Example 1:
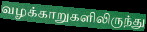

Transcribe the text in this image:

வழக்காறுகளிலிருந்து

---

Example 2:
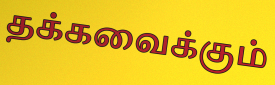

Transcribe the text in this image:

தக்கவைக்கும்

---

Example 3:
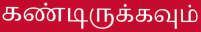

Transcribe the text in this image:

கண்டிருக்கவும்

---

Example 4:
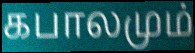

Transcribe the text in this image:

கபாலமும்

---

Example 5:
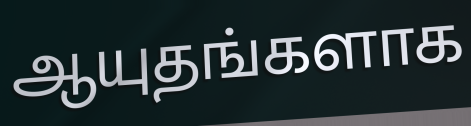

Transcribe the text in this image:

ஆயுதங்களாக